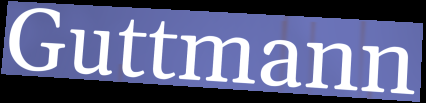
Guttmann